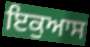
ਇਕੁਆਸ